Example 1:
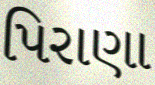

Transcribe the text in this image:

પિરાણા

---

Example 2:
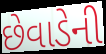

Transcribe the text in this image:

છેવાડેની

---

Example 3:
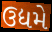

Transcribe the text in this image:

ઉદ્યમે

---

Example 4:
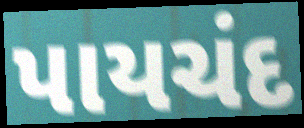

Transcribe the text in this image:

પાયચંદ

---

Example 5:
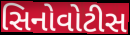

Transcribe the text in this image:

સિનોવોટીસ